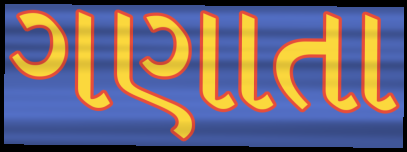
ગણાતા